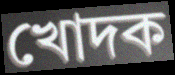
খোদক